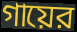
গায়ের